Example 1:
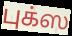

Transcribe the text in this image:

புக்ஸ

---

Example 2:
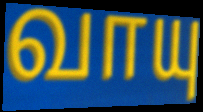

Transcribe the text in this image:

வாயு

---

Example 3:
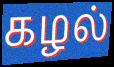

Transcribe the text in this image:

கழல்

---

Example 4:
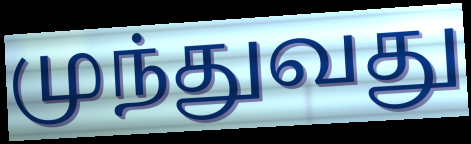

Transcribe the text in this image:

முந்துவது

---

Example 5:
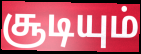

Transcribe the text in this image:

சூடியும்